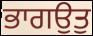
ਭਾਗਉਤੁ